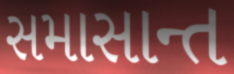
સમાસાન્ત